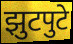
झुटपुटे